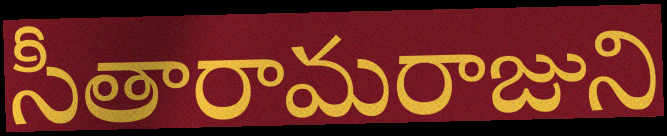
సీతారామరాజుని